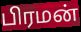
பிரமன்